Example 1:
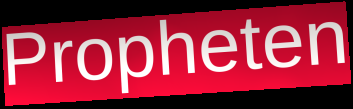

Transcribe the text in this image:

Propheten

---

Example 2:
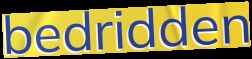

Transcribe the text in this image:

bedridden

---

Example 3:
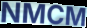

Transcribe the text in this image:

NMCM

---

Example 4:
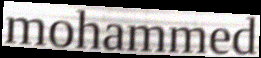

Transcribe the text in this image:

mohammed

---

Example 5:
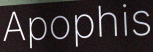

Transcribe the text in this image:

Apophis